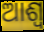
ଆଶ୍ୱ